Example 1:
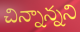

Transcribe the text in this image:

చిన్నాన్నని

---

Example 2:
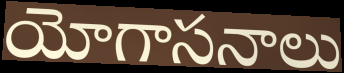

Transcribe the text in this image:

యోగాసనాలు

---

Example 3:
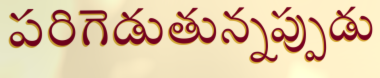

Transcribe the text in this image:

పరిగెడుతున్నప్పుడు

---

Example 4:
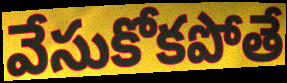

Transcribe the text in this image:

వేసుకోకపోతే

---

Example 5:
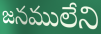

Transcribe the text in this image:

జనములేని